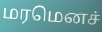
மரமெனச்